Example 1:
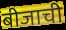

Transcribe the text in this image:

बीजाची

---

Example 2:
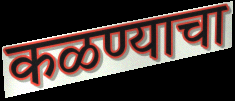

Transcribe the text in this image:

कळण्याचा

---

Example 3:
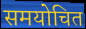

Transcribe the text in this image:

समयोचित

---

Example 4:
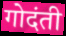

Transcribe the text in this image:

गोदंती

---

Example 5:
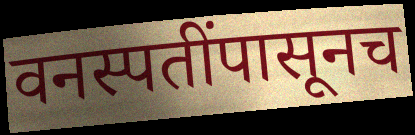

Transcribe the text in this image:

वनस्पतींपासूनच